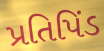
પ્રતિપિંડ